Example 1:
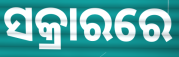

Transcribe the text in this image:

ସକ୍ରାରରେ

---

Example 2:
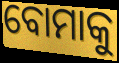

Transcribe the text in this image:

ବୋମାକୁ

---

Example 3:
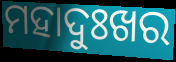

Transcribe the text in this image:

ମହାଦୁଃଖର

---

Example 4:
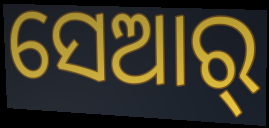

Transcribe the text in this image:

ସେଆର୍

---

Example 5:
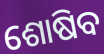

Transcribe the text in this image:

ଶୋଷିବ